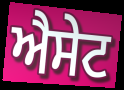
ਐਸੇਟ